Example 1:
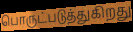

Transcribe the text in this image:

பொருட்படுத்துகிறது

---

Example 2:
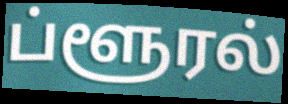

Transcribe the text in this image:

ப்ளூரல்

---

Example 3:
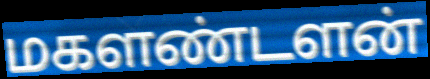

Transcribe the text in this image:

மகளண்டளன்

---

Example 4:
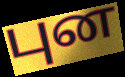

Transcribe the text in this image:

புன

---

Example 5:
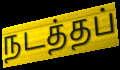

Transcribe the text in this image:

நடத்தப்